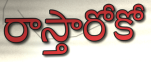
రాస్తారోకో